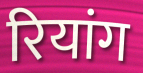
रियांग